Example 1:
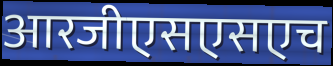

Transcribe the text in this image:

आरजीएसएसएच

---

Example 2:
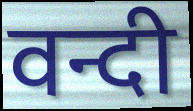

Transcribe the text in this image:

वन्दी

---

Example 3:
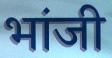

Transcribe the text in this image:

भांजी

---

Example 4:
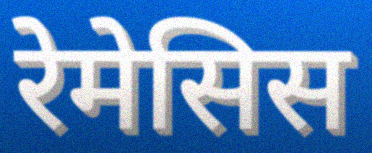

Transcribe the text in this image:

रेमेसिस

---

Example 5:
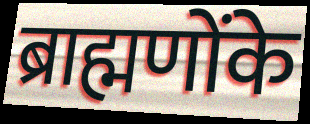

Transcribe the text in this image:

ब्राह्मणोंके